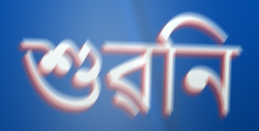
শুৱনি